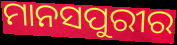
ମାନସପୁରୀର